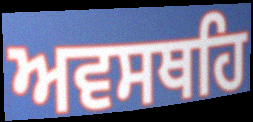
ਅਵਸਥਹਿ